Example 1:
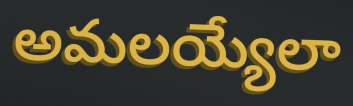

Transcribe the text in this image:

అమలయ్యేలా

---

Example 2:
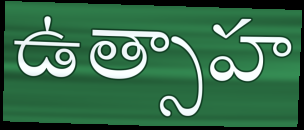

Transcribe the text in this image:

ఉత్సాహ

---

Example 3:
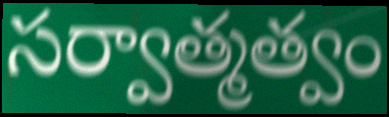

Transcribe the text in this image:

సర్వాత్మత్వం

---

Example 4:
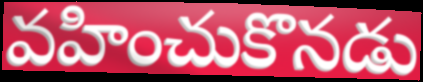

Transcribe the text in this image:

వహించుకొనడు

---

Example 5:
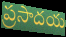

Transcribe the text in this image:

ప్రసాదయ